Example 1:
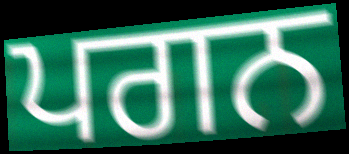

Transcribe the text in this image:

ਪਗਨ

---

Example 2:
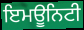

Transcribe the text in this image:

ਇਮਊਨਿਟੀ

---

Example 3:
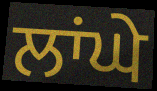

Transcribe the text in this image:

ਲਾਂਘੇ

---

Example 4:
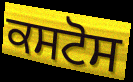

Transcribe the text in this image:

ਕਸਟੋਸ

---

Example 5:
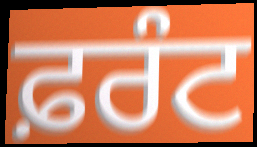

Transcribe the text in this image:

ਫ਼ਰੰਟ